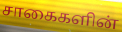
சாகைகளின்